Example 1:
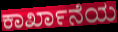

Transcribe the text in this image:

ಕಾರ್ಖಾನೆಯ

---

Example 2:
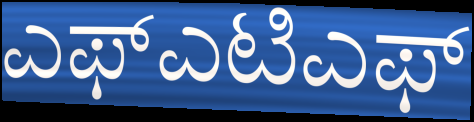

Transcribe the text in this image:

ಎಫ್ಎಟಿಎಫ್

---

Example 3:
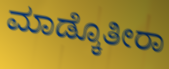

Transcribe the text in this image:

ಮಾಡ್ಕೊತೀರಾ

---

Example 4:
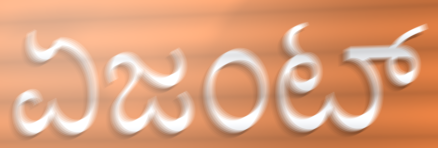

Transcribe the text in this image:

ಏಜಂಟ್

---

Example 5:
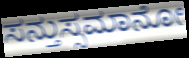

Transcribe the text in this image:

ಸನ್ತುಸ್ಸಮಾನೋ